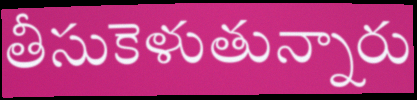
తీసుకెళుతున్నారు